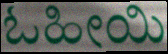
ಓಹೀಯಿ